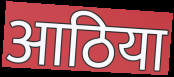
आठिया